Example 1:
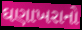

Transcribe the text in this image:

ઘણાખરાનો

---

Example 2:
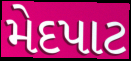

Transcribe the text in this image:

મેદપાટ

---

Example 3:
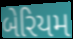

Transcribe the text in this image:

બેરિયમ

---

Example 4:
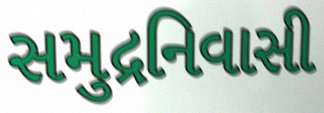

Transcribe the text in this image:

સમુદ્રનિવાસી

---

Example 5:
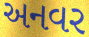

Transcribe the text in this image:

અનવર